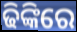
ଢିଙ୍କିରେ